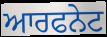
ਆਰਫਨੇਟ